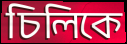
চিলিকে